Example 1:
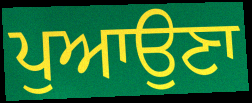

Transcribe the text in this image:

ਪੁਆਉਣਾ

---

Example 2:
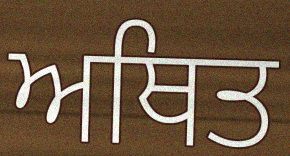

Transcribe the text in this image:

ਅਥਿਤ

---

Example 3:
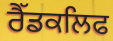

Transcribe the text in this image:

ਰੈੱਡਕਲਿਫ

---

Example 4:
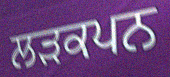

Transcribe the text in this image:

ਲੜਕਪਨ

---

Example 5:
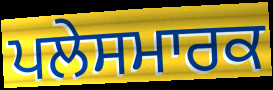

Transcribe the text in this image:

ਪਲੇਸਮਾਰਕ